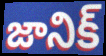
జానిక్